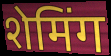
शेमिंग